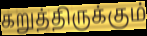
கறுத்திருக்கும்